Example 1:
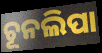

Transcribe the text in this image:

ଚୂନଲିପା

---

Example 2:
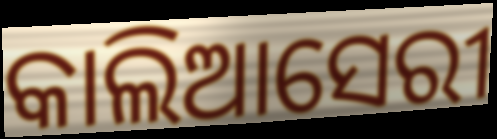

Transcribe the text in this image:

କାଲିଆସେରୀ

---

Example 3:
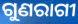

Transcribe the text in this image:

ଗୁଣରାଗୀ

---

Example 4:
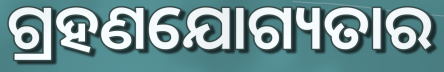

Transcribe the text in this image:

ଗ୍ରହଣଯୋଗ୍ୟତାର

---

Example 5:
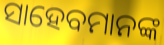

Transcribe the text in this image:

ସାହେବମାନଙ୍କ